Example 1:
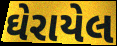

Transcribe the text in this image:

ઘેરાયેલ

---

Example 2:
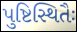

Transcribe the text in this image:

પુષ્ટિસ્થિતૈઃ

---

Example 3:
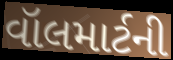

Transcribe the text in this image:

વૉલમાર્ટની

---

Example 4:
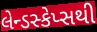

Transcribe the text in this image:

લેન્ડસ્કેપ્સથી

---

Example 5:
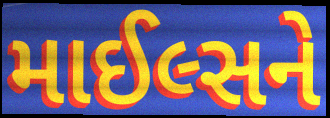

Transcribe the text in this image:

માઈલ્સને